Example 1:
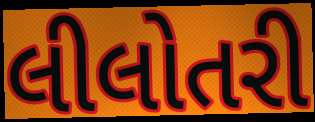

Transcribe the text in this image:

લીલોતરી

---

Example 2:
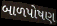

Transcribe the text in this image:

બાળપોષણ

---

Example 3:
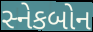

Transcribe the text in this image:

સ્નેકબોન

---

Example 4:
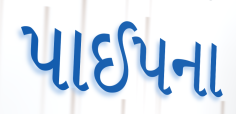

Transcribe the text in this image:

પાઈપના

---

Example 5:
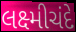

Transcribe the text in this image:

લક્ષ્મીચંદે